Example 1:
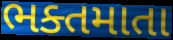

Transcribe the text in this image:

ભક્તમાતા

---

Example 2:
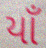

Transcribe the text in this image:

યાઁ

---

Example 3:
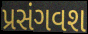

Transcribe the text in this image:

પ્રસંગવશ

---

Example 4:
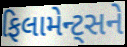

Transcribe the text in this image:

ફિલામેન્ટ્સને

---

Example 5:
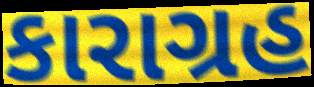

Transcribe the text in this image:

કારાગ્રહ